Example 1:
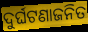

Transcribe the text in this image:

ଦୁର୍ଘଟଣାଜନିତ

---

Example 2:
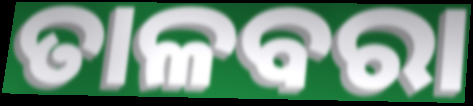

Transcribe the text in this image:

ତାଳବରା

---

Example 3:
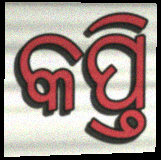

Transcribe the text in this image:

କପ୍ତି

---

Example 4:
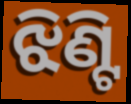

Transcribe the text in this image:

ଝିଣ୍ଟି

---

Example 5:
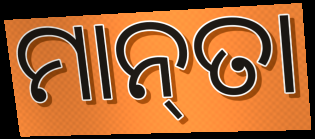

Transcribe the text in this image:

ମାନ୍‌ତା